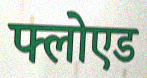
फ्लोएड